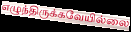
எழுந்திருக்கவேயில்லை